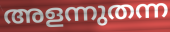
അളന്നുതന്ന